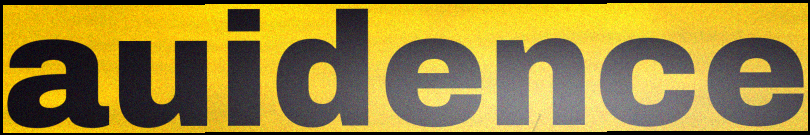
auidence